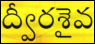
ద్వీరశైవ